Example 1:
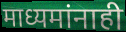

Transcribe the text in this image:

माध्यमांनाही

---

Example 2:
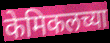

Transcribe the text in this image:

केमिकलच्या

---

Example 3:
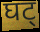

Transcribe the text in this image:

घट्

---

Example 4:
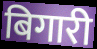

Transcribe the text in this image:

बिगारी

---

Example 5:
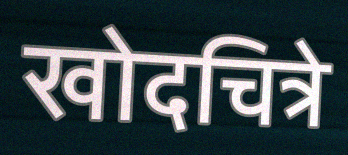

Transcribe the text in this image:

खोदचित्रे